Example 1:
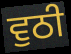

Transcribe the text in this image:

ਵੁਠੀ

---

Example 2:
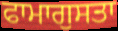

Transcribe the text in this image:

ਫਾਮਾਗੁਸਤਾ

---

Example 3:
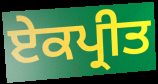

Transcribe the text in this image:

ਏਕਪ੍ਰੀਤ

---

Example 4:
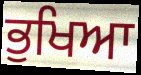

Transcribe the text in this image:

ਭੁਖਿਆ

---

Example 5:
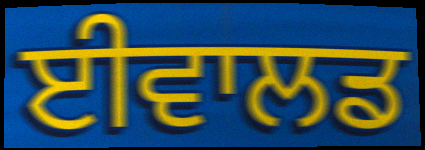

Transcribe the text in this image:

ਈਵਾਲਡ